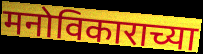
मनोविकाराच्या